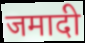
जमादी